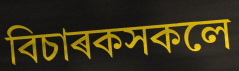
বিচাৰকসকলে